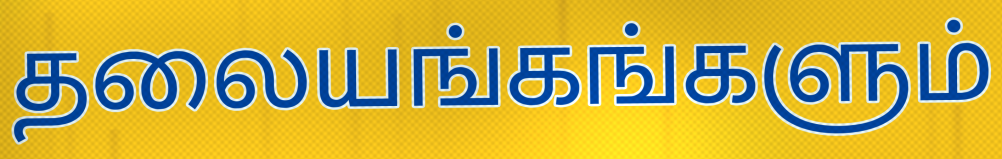
தலையங்கங்களும்